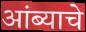
आंब्याचे